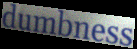
dumbness